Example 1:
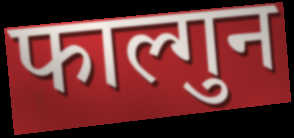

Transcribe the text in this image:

फाल्गुन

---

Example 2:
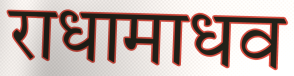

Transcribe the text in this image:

राधामाधव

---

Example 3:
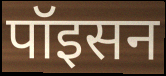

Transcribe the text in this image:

पॉइसन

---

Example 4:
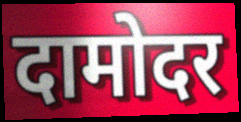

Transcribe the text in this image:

दामोदर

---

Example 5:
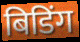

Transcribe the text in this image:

बिडिंग